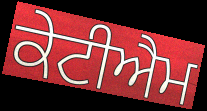
ਕੇਟੀਐਮ